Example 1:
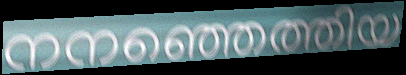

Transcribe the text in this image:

നനഞ്ഞെത്തിയ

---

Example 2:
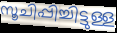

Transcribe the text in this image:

സൂചിപ്പിച്ചിട്ടുള്ള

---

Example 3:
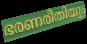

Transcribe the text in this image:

ഭരണരീതിയും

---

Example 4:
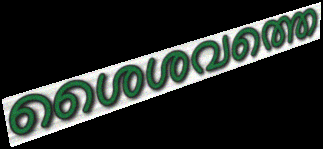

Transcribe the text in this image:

ശൈശവത്തെ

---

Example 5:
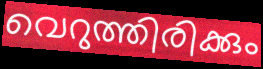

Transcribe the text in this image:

വെറുത്തിരിക്കും